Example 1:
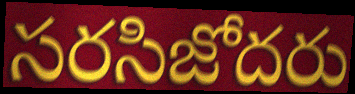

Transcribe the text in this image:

సరసిజోదరు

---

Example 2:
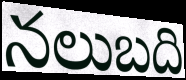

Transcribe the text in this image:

నలుబది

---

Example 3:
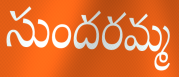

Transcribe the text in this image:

సుందరమ్మ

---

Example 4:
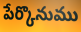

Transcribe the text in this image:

పేర్కొనుము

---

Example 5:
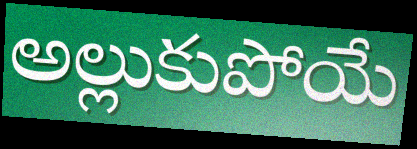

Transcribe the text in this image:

అల్లుకుపోయే